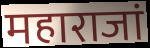
महाराजां